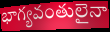
భాగ్యవంతులైనా